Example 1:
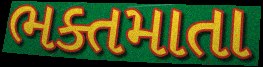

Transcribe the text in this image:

ભક્તમાતા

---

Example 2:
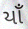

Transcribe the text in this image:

યાઁ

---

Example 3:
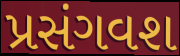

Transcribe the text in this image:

પ્રસંગવશ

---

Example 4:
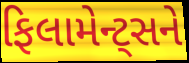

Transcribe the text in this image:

ફિલામેન્ટ્સને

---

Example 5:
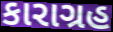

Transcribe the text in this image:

કારાગ્રહ